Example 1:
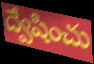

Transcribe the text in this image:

ద్వేషించు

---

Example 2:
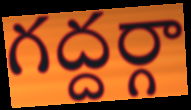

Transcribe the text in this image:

గద్దర్గా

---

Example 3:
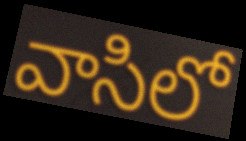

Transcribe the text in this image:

వాసిలో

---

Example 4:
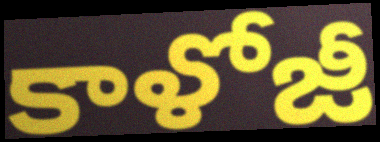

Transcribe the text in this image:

కాళోజీ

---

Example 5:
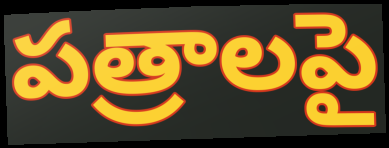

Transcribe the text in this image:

పత్రాలపై